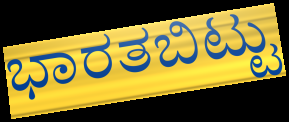
ಭಾರತಬಿಟ್ಟು